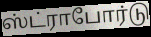
ஸ்ட்ராபோர்டு